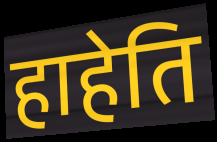
हाहेति